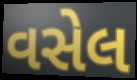
વસેલ